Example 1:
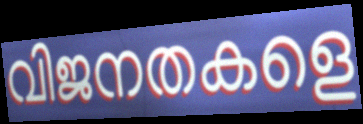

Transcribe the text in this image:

വിജനതകളെ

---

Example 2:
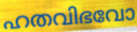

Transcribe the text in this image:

ഹതവിഭവോ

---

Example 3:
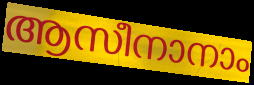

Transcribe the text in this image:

ആസീനാനാം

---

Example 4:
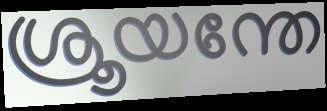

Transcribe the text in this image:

ശ്രൂയന്തേ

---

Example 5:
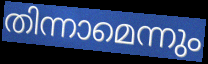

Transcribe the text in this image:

തിന്നാമെന്നും